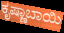
ಕೃಷ್ಣಾಬಾಯಿ